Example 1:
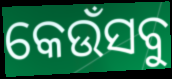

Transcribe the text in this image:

କେଉଁସବୁ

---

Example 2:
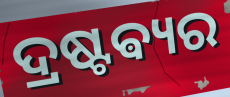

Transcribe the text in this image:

ଦ୍ରଷ୍ଟଵ୍ୟର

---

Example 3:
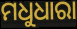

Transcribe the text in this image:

ମଧୁଧାରା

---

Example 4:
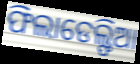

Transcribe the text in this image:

ଫିଲାଡେଲ୍ଫିଆ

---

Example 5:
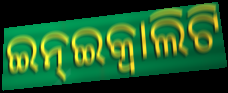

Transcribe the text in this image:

ଇନ୍ଇକ୍ଵାଲିଟି